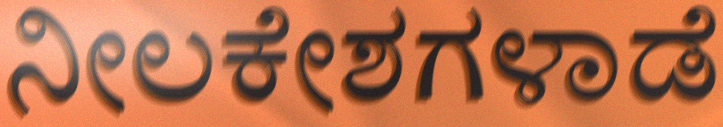
ನೀಲಕೇಶಗಳಾಡೆ